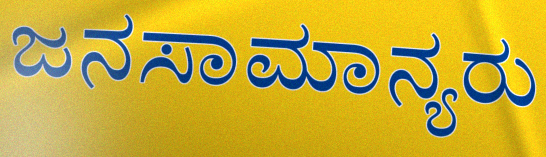
ಜನಸಾಮಾನ್ಯರು